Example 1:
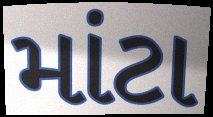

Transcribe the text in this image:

માંટા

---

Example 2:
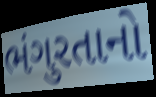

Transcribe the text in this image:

ભંગુરતાનો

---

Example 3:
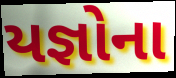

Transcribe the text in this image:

યજ્ઞોના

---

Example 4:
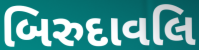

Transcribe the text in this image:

બિરુદાવલિ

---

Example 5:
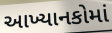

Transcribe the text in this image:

આખ્યાનકોમાં